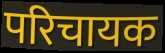
परिचायक